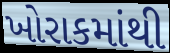
ખોરાકમાંથી